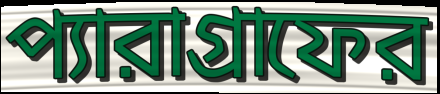
প্যারাগ্রাফের